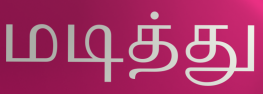
மடித்து